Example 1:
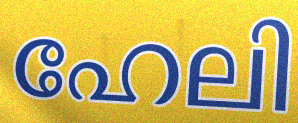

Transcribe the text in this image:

ഹേലി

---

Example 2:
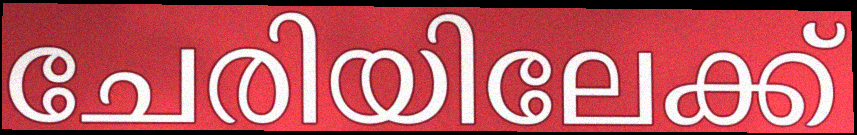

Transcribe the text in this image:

ചേരിയിലേക്ക്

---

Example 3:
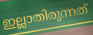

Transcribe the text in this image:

ഇല്ലാതിരുന്നത്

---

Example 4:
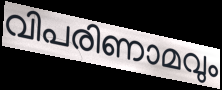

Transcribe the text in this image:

വിപരിണാമവും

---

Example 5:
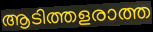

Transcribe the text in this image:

ആടിത്തളരാത്ത